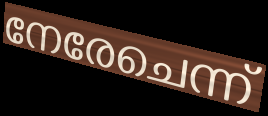
നേരേചെന്ന്